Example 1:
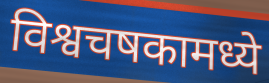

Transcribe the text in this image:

विश्वचषकामध्ये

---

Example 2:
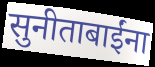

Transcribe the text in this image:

सुनीताबाईंना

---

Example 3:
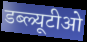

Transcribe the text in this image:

डब्ल्यूटीओ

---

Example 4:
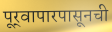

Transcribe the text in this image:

पूर्वापारपासूनची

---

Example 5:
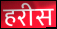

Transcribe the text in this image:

हरीस